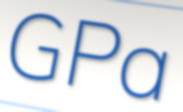
GPa